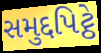
સમુદ્દપિટ્ઠે